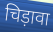
चिड़ावा